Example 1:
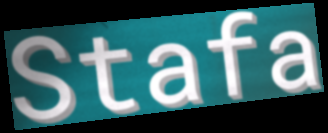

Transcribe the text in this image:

Stafa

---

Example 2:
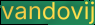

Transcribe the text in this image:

vandovij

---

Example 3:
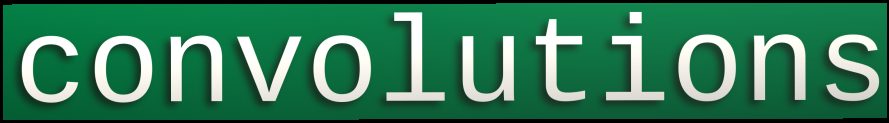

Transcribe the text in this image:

convolutions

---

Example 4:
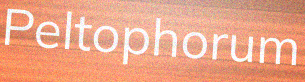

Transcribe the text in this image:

Peltophorum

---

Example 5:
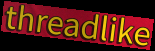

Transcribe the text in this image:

threadlike